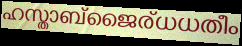
ഹസ്താബ്ജൈര്ധധതീം